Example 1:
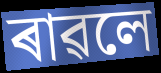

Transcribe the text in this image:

ৰাৱলে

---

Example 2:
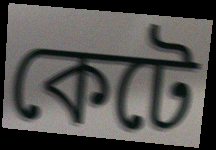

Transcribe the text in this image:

কেটে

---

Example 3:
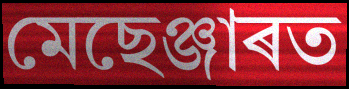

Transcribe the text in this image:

মেছেঞ্জাৰত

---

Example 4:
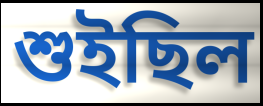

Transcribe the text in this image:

শুইছিল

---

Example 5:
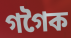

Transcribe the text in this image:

গগৈক